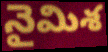
నైమిశ